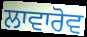
ਲਾਵਾਰੋਵ